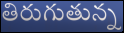
తిరుగుతున్న